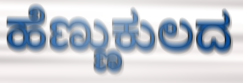
ಹೆಣ್ಣುಕುಲದ